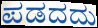
ಪಡದದು